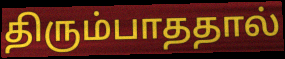
திரும்பாததால்